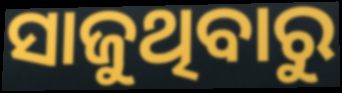
ସାଜୁଥିବାରୁ